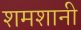
शमशानी